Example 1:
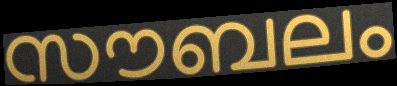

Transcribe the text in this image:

സൗബലം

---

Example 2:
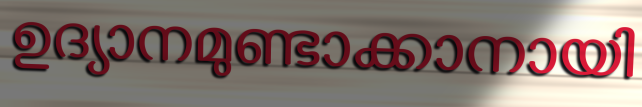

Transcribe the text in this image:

ഉദ്യാനമുണ്ടാക്കാനായി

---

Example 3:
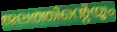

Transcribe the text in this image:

ജലത്തിന്റെയും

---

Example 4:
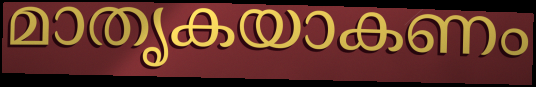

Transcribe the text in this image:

മാതൃകയാകണം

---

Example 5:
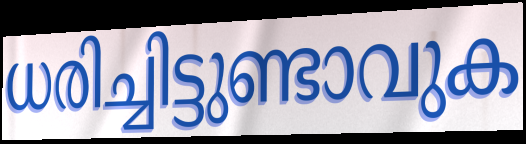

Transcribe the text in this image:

ധരിച്ചിട്ടുണ്ടാവുക